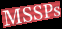
MSSPs